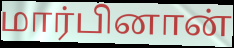
மார்பினான்